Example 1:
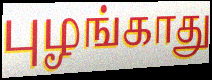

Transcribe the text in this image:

புழங்காது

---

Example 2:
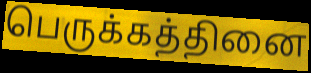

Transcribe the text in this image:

பெருக்கத்தினை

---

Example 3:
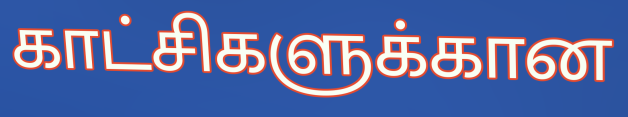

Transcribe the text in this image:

காட்சிகளுக்கான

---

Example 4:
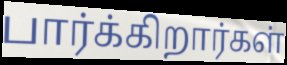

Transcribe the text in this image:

பார்க்கிறார்கள்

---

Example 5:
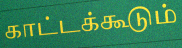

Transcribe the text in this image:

காட்டக்கூடும்